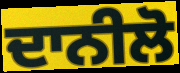
ਦਾਨੀਲੋ